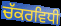
ਚੱਕਰਵਿਧੀ